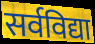
सर्वविद्या